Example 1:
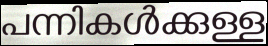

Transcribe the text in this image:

പന്നികൾക്കുള്ള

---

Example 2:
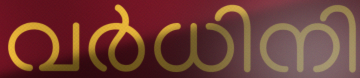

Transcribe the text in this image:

വർധിനി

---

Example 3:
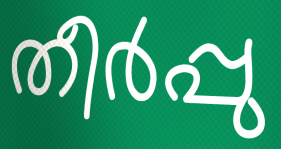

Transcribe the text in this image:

തീർപ്പു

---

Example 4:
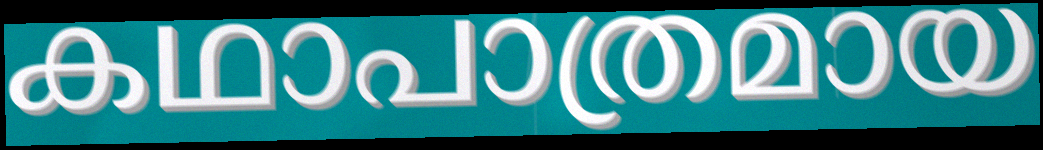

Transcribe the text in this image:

കഥാപാത്രമായ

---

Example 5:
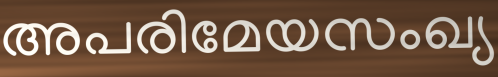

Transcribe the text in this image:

അപരിമേയസംഖ്യ